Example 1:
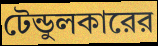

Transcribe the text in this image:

টেন্ডুলকারের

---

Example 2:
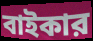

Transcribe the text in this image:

বাইকার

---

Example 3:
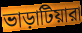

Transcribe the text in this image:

ভাড়াটিয়ারা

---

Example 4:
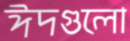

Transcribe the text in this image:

ঈদগুলো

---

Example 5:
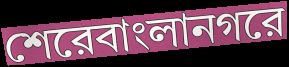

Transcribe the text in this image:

শেরেবাংলানগরে